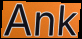
Ank